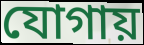
যোগায়